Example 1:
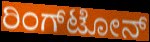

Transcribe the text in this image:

ರಿಂಗ್‌ಟೋನ್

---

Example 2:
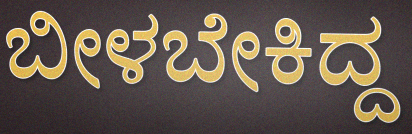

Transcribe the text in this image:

ಬೀಳಬೇಕಿದ್ದ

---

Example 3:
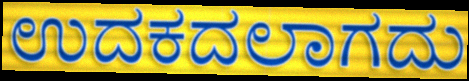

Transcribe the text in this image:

ಉದಕದಲಾಗದು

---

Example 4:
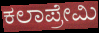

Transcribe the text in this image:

ಕಲಾಪ್ರೇಮಿ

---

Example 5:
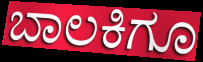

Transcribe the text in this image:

ಬಾಲಕಿಗೂ